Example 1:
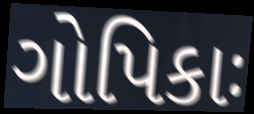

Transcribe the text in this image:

ગોપિકાઃ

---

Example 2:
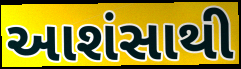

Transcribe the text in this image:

આશંસાથી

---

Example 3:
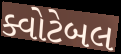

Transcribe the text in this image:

ક્વોટેબલ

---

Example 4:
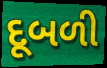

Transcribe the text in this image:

દૂબળી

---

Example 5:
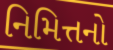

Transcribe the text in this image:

નિમિત્તનો